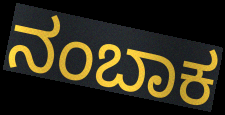
ನಂಬಾಕ